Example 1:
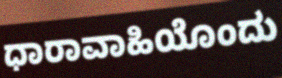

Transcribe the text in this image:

ಧಾರಾವಾಹಿಯೊಂದು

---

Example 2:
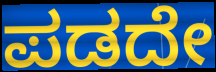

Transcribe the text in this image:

ಪಡದೇ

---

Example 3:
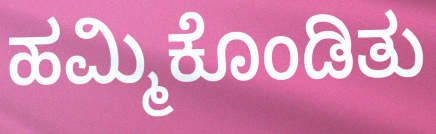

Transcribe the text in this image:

ಹಮ್ಮಿಕೊಂಡಿತು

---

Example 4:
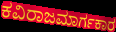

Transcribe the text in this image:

ಕವಿರಾಜಮಾರ್ಗಕಾರ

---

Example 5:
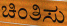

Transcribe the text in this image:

ಚಿಂತಿಸು